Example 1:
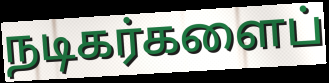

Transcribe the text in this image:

நடிகர்களைப்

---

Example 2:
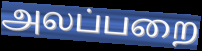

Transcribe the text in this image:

அலப்பறை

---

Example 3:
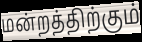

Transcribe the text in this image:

மன்றத்திற்கும்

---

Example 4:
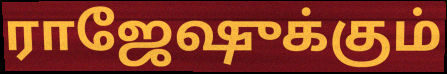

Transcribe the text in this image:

ராஜேஷுக்கும்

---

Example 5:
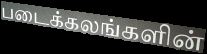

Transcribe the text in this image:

படைக்கலங்களின்